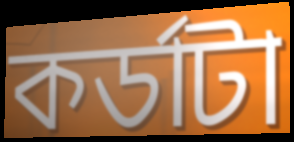
কর্ডাটা